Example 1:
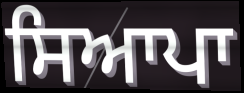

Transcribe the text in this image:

ਸਿਆਪਾ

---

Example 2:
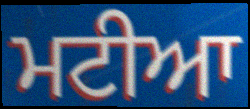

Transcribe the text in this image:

ਮਟੀਆ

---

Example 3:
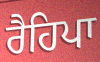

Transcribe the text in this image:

ਰੈਹਿਪਾ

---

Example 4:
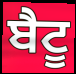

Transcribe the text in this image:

ਬੈਟੂ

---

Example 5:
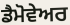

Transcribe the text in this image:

ਡੈਮੋਵੇਅਰ